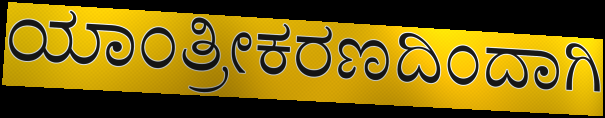
ಯಾಂತ್ರೀಕರಣದಿಂದಾಗಿ